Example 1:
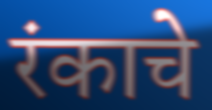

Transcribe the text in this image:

रंकाचे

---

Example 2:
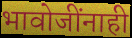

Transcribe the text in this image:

भावोजींनाही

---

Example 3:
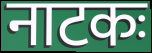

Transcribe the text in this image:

नाटकः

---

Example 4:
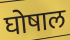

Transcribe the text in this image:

घोषाल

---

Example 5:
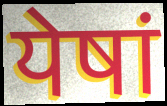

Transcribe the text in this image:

येषां